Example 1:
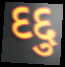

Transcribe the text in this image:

દદ્દુ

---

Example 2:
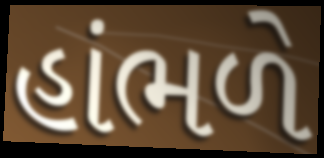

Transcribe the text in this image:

હાંભળે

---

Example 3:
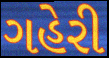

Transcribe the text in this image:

ગહેરી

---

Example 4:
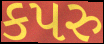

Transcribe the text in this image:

કપરુ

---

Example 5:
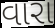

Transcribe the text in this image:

વારા